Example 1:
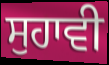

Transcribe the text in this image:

ਸੁਹਾਵੀ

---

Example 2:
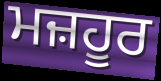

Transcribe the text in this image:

ਮਜ਼ਹੂਰ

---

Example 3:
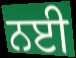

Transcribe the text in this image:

ਨਈ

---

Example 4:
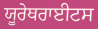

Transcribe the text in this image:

ਯੂਰੇਥਰਾਈਟਸ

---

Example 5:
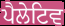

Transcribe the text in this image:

ਪੈਲੇਟਿਵ